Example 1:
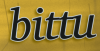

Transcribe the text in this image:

bittu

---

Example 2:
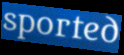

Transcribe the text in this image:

sported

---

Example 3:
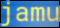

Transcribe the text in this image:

jamu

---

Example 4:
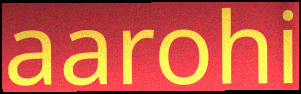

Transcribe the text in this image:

aarohi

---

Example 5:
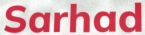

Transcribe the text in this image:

Sarhad